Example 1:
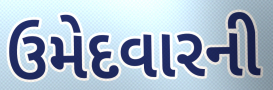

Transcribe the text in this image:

ઉમેદવારની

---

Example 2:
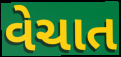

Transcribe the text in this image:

વેચાત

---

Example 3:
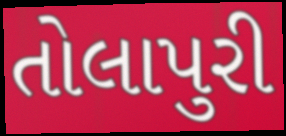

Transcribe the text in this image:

તોલાપુરી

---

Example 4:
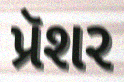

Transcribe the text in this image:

પ્રૅશર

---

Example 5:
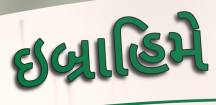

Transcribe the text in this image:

ઇબ્રાહિમે